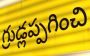
గ్రుడ్లప్పగించి